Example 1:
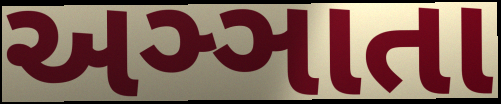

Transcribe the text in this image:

અઞ્ઞાતા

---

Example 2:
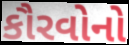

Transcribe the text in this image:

કૌરવોનો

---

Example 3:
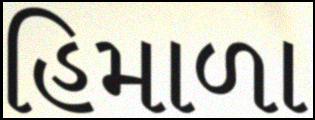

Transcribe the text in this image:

હિમાળા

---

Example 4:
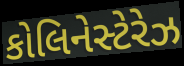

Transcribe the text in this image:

કોલિનેસ્ટેરેઝ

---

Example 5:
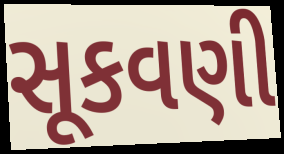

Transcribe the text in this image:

સૂકવણી